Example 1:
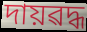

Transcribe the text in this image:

দায়ৱদ্ধ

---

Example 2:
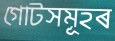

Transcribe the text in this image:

গোটসমূহৰ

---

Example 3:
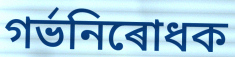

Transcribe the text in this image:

গৰ্ভনিৰোধক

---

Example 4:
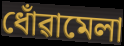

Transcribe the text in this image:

ধোঁৱামেলা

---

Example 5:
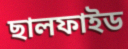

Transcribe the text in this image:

ছালফাইড